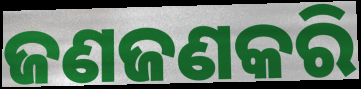
ଜଣଜଣକରି